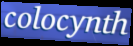
colocynth